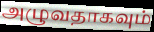
அழுவதாகவும்